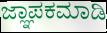
ಜ್ಞಾಪಕಮಾಡಿ